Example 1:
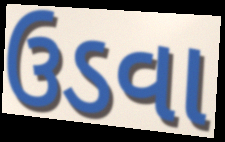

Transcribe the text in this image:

ઉડવા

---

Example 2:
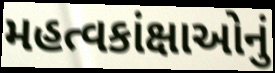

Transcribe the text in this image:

મહત્વકાંક્ષાઓનું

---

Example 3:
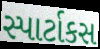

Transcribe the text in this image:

સ્પાર્ટાકસ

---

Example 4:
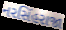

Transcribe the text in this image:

નરસિંહરાજા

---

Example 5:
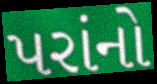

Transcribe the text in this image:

પરાંનો